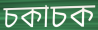
চকাচক